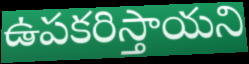
ఉపకరిస్తాయని